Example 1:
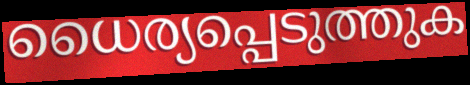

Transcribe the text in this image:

ധൈര്യപ്പെടുത്തുക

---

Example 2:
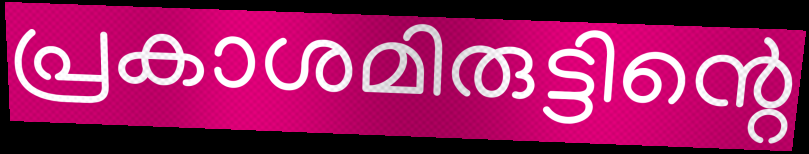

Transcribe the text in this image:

പ്രകാശമിരുട്ടിന്റെ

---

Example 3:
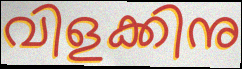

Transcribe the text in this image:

വിളക്കിനു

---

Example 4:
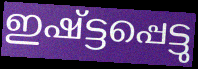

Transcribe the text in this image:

ഇഷ്ട്ടപ്പെട്ടു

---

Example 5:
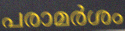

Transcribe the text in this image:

പരാമർശം